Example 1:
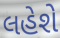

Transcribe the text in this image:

લહેશે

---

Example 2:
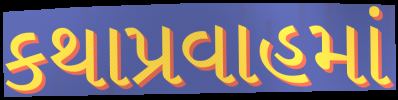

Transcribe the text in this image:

કથાપ્રવાહમાં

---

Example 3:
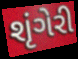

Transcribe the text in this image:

શૃંગેરી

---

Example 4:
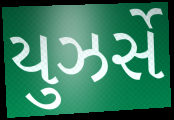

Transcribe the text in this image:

યુઝર્સે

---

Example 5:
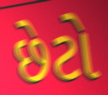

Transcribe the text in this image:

છેટો